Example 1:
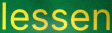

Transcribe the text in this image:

lessen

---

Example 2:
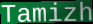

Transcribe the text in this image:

Tamizh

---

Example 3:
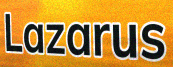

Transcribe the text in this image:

Lazarus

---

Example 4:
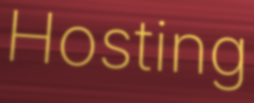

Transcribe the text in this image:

Hosting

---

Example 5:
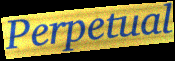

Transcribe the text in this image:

Perpetual